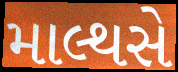
માલ્થસે